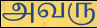
அவரு